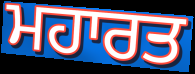
ਮਹਾਰਤ